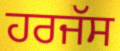
ਹਰਜੱਸ